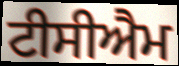
ਟੀਸੀਐਮ